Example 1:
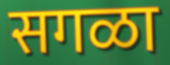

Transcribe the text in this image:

सगळा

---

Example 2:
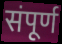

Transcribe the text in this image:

संपूर्ण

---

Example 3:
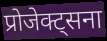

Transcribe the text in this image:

प्रोजेक्ट्सना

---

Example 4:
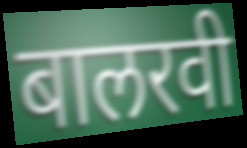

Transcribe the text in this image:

बालरवी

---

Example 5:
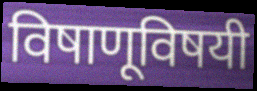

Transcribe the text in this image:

विषाणूविषयी